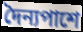
দৈন্যপাশে